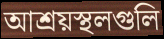
আশ্রয়স্থলগুলি